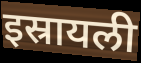
इस्रायली